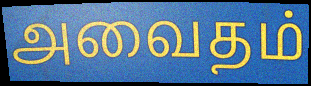
அவைதம்